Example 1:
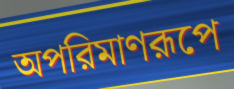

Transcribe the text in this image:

অপরিমাণরূপে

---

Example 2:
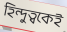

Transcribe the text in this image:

হিন্দুত্বকেই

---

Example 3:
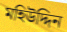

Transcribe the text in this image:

মহিউদ্দিন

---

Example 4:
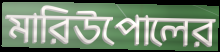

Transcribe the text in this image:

মারিউপোলের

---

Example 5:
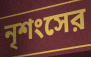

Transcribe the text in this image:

নৃশংসের